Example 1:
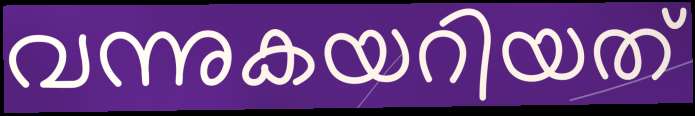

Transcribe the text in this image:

വന്നുകയറിയത്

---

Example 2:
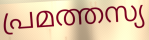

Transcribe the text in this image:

പ്രമത്തസ്യ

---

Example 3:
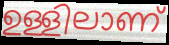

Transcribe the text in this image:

ഉള്ളിലാണ്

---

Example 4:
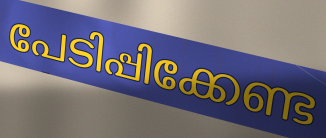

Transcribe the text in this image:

പേടിപ്പിക്കേണ്ട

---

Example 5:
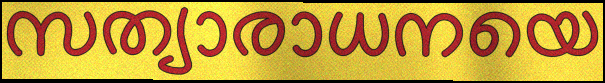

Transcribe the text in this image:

സത്യാരാധനയെ